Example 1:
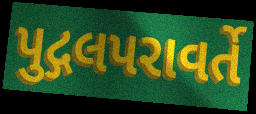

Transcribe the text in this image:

પુદ્ગલપરાવર્તે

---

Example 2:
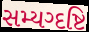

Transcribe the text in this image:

સમ્યગ્દષ્ટિ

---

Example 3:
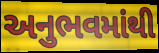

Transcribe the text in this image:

અનુભવમાંથી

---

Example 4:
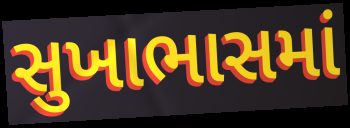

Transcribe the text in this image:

સુખાભાસમાં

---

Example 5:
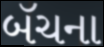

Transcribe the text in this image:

બૅચના